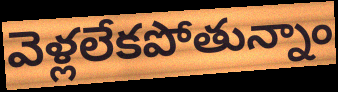
వెళ్లలేకపోతున్నాం